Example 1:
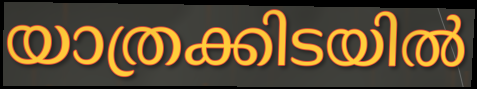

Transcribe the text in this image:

യാത്രക്കിടയിൽ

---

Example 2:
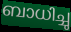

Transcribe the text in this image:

ബാധിച്ചു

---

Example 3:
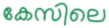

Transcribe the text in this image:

കേസിലെ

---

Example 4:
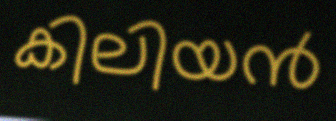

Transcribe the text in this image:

കിലിയൻ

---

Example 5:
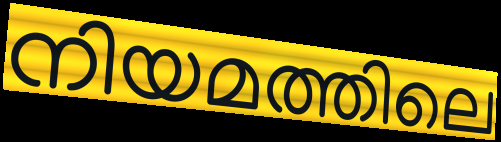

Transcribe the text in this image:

നിയമത്തിലെ